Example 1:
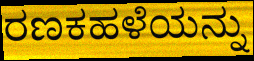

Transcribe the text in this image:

ರಣಕಹಳೆಯನ್ನು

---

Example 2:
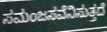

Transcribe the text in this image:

ಸಮಂಜಸವೆನಿಸುತ್ತದೆ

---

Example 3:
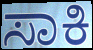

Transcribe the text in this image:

ಸಾಕಿ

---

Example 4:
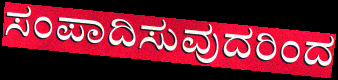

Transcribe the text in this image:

ಸಂಪಾದಿಸುವುದರಿಂದ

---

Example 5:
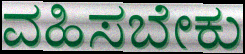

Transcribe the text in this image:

ವಹಿಸಬೇಕು